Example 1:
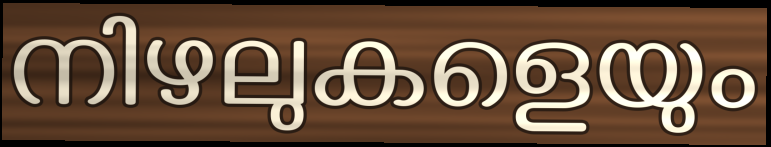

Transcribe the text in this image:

നിഴലുകളെയും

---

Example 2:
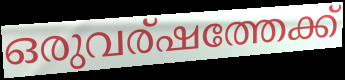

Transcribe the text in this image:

ഒരുവര്ഷത്തേക്ക്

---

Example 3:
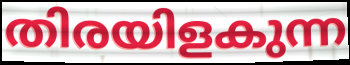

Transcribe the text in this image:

തിരയിളകുന്ന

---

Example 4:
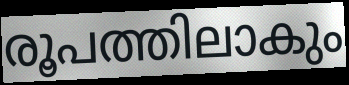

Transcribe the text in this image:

രൂപത്തിലാകും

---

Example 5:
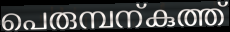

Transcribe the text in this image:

പെരുമ്പന്കുത്ത്